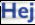
Hej